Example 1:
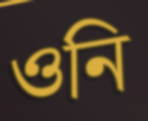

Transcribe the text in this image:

ওনি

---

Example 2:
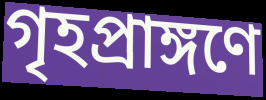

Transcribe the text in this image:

গৃহপ্রাঙ্গণে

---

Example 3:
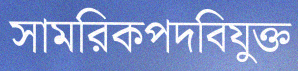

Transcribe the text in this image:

সামরিকপদবিযুক্ত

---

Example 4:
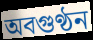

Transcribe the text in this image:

অবগুণ্ঠন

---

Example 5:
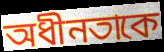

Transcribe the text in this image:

অধীনতাকে